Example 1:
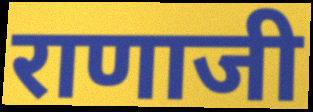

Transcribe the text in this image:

राणाजी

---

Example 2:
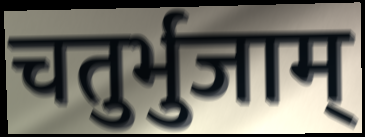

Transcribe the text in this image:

चतुर्भुजाम्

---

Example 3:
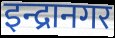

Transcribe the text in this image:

इन्द्रानगर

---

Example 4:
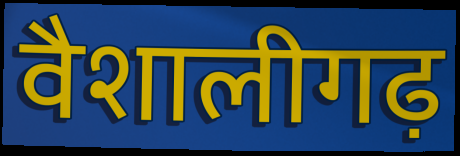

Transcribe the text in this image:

वैशालीगढ़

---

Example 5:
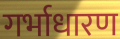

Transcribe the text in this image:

गर्भाधारण